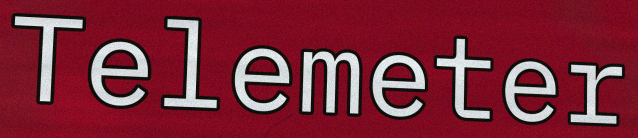
Telemeter